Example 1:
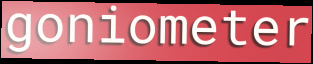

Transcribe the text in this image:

goniometer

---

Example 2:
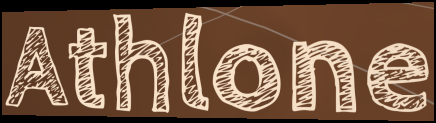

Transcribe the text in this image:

Athlone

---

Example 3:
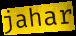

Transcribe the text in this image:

jahar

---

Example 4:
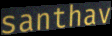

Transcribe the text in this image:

santhav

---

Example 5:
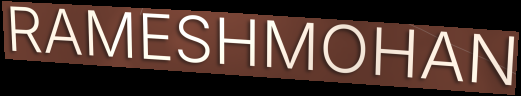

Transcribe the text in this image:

RAMESHMOHAN